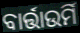
ବାର୍ତ୍ତାଉର୍ମି